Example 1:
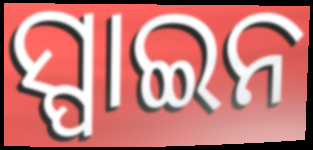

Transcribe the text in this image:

ସ୍ପାଇନ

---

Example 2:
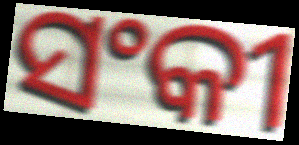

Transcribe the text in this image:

ସଂକୀ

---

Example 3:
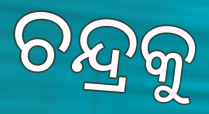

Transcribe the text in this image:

ଚନ୍ଦ୍ରକୁ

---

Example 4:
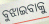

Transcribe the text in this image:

ବୁଝାଇବାକୁ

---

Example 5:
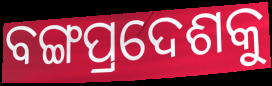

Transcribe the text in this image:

ବଙ୍ଗପ୍ରଦେଶକୁ